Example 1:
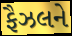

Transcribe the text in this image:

ફૈઝલને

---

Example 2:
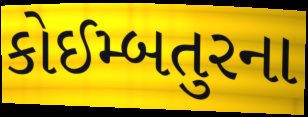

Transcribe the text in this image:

કોઈમ્બતુરના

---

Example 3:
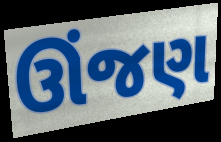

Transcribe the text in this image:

ઊંજણ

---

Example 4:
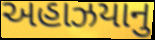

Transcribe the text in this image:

અહાઝયાનુ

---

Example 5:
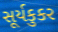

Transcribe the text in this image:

સૂર્યકુકર